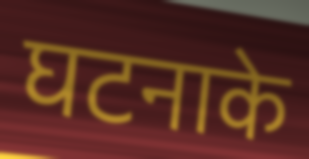
घटनाके